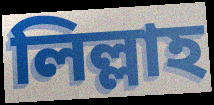
লিল্লাহ